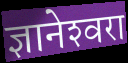
ज्ञानेश्वरा